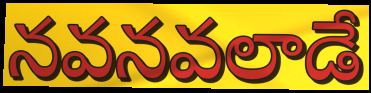
నవనవలాడే